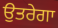
ਉਤਰੇਗਾ